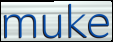
muke